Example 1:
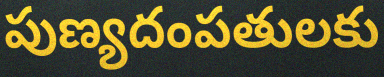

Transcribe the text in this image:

పుణ్యదంపతులకు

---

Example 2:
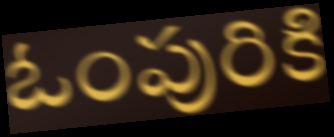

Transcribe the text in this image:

ఓంపురికి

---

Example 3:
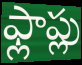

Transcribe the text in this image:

ఫ్లాప్లు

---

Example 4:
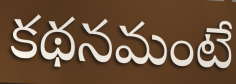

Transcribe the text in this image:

కథనమంటే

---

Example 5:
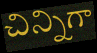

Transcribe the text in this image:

చిన్నిగా